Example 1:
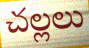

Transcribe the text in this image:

చల్లలు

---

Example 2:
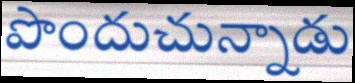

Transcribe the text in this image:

పొందుచున్నాడు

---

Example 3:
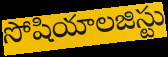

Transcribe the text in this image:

సోషియాలజిస్టు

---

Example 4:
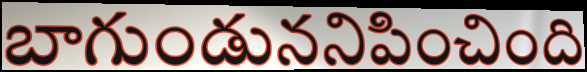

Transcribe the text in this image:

బాగుండుననిపించింది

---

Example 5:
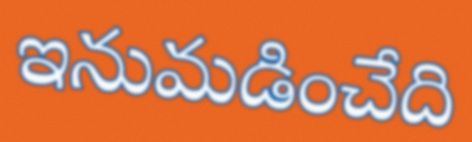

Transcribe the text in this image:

ఇనుమడించేది